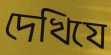
দেখিযে